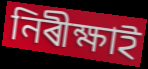
নিৰীক্ষাই